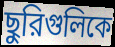
ছুরিগুলিকে